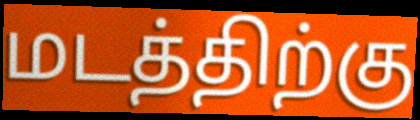
மடத்திற்கு